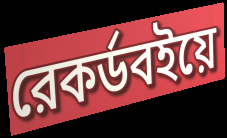
রেকর্ডবইয়ে